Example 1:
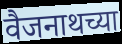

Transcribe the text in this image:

वैजनाथच्या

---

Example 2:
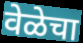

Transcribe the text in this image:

वेळेचा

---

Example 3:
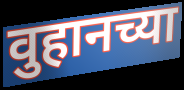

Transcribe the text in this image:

वुहानच्या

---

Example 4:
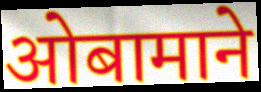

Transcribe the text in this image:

ओबामाने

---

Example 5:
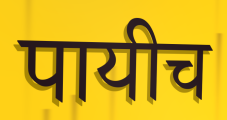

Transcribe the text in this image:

पायीच